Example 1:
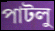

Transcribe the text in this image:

পাটলু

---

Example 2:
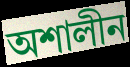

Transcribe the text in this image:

অশালীন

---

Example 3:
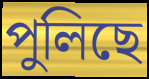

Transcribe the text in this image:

পুলিছে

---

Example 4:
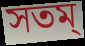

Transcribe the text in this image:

সতম্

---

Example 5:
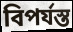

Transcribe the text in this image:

বিপৰ্যস্ত